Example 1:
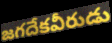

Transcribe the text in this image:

జగదేకవీరుడు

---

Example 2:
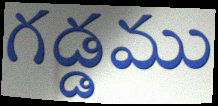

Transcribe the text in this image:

గడ్డము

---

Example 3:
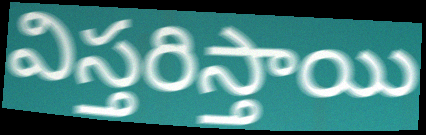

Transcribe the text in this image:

విస్తరిస్తాయి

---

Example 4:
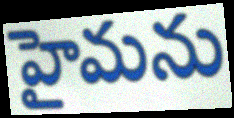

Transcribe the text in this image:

హైమను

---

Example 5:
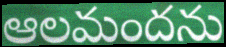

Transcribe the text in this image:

ఆలమందను